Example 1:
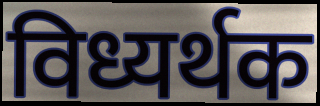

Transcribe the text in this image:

विध्यर्थक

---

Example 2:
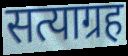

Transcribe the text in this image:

सत्याग्रह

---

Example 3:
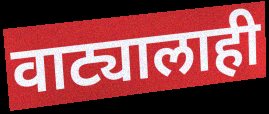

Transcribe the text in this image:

वाट्यालाही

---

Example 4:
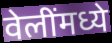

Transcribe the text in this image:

वेलींमध्ये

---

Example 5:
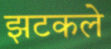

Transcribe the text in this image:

झटकले